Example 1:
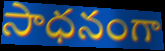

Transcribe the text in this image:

సాధనంగా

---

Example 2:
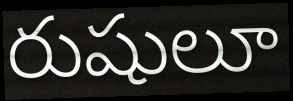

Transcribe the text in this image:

రుషులూ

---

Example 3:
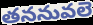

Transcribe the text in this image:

తననువలె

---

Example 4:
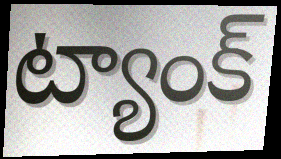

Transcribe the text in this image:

ట్యాంక్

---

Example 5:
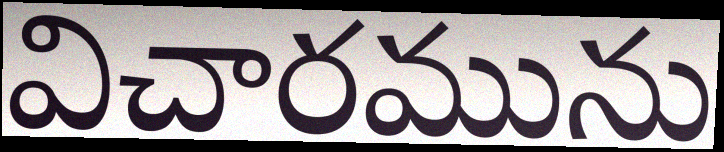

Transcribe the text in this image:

విచారమును